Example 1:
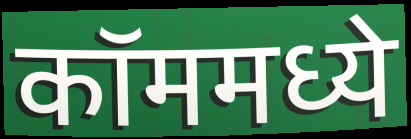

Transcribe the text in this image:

कॉममध्ये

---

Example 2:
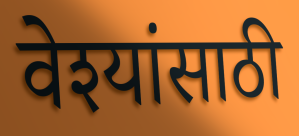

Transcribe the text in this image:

वेश्यांसाठी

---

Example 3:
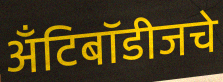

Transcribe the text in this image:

अँटिबॉडीजचे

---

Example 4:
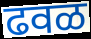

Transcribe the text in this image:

ढवळ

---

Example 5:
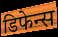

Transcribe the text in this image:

डिफेन्स